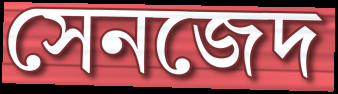
সেনজেদ